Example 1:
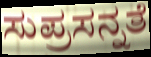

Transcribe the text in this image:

ಸುಪ್ರಸನ್ನತೆ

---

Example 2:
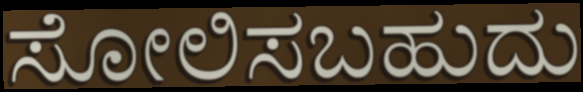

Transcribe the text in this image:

ಸೋಲಿಸಬಹುದು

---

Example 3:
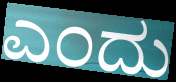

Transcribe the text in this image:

ಎಂದು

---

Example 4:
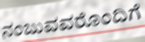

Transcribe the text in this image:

ನಂಬುವವರೊಂದಿಗೆ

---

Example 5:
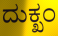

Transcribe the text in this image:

ದುಕ್ಖಂ